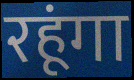
रहूंगा